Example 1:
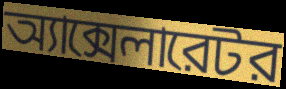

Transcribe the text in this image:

অ্যাক্সেলারেটর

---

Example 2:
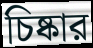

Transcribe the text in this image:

চিষ্কার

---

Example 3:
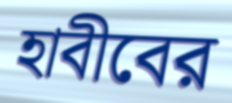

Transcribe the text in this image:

হাবীবের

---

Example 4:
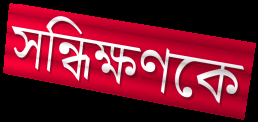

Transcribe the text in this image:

সন্ধিক্ষণকে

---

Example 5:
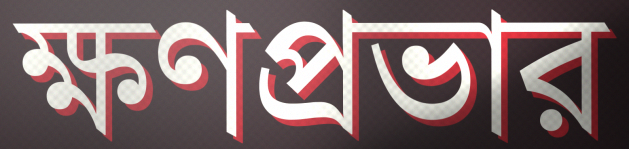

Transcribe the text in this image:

ক্ষণপ্রভার